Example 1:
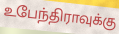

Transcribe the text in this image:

உபேந்திராவுக்கு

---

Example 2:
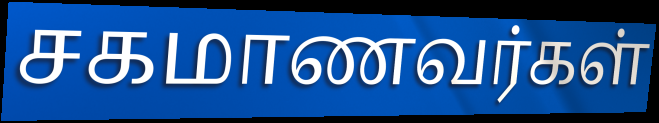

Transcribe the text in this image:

சகமாணவர்கள்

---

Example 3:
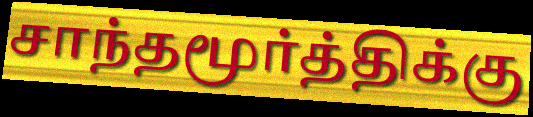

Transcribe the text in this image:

சாந்தமூர்த்திக்கு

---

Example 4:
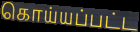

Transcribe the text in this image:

கொய்யப்பட்ட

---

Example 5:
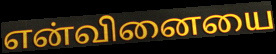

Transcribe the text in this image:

என்வினையை